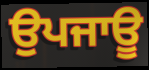
ਉਪਜਾਊ